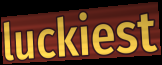
luckiest